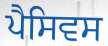
ਪੈਸਿਵਸ